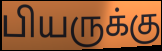
பியருக்கு